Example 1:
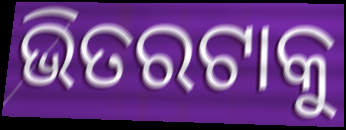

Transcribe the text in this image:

ଭିତରଟାକୁ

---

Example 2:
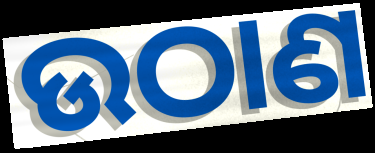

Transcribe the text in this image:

ଉଠାଣ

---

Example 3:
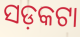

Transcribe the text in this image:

ସଡ଼କଟା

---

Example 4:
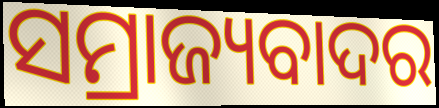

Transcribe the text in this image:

ସମ୍ରାଜ୍ୟବାଦର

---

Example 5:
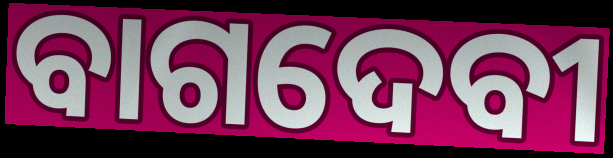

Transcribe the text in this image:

ବାଗଦେବୀ